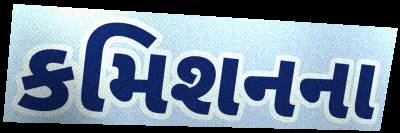
કમિશનના